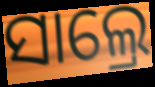
ସାଲ୍ରେ